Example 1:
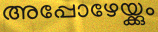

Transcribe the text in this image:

അപ്പോഴേയ്ക്കും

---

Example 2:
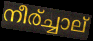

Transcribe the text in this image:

നീര്ച്ചാല്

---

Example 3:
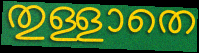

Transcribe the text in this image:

തുള്ളാതെ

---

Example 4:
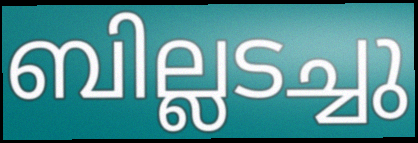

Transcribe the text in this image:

ബില്ലടച്ചു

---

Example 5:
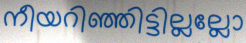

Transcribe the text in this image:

നീയറിഞ്ഞിട്ടില്ലല്ലോ